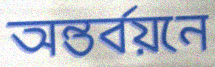
অন্তর্বয়নে